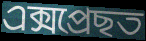
এক্সপ্ৰেছত